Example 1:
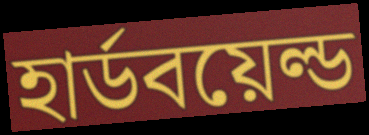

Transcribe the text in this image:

হার্ডবয়েল্ড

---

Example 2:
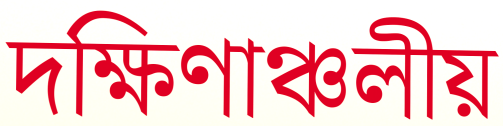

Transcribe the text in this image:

দক্ষিণাঞ্চলীয়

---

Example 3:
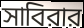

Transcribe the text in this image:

সাবিরার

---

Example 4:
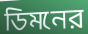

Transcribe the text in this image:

ডিমনের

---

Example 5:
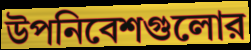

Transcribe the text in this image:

উপনিবেশগুলোর